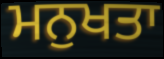
ਮਨੁਖਤਾ